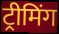
ट्रीमिंग